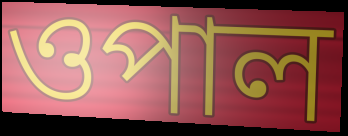
ওপাল